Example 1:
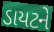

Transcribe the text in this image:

ડાયટને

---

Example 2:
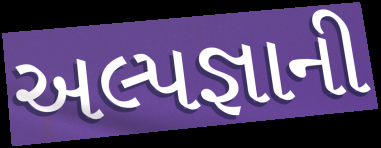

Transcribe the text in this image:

અલ્પજ્ઞાની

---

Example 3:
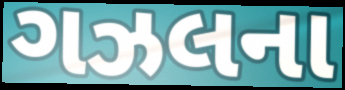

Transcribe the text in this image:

ગઝલના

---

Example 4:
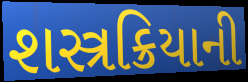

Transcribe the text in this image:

શસ્ત્રક્રિયાની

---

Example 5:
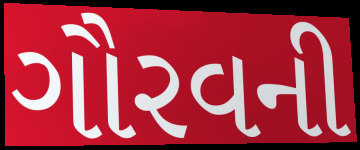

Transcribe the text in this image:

ગૌરવની